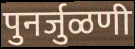
पुनर्जुळणी